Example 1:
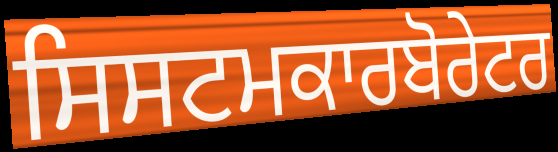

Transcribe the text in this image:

ਸਿਸਟਮਕਾਰਬੋਰੇਟਰ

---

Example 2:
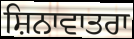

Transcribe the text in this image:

ਸ਼ਿਨਾਵਾਤਰਾ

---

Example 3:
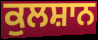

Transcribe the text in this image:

ਕੁਲਸ਼ਾਨ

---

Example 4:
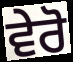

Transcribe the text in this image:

ਵੇਰੋ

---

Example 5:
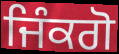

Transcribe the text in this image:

ਜਿੰਕਗੋ